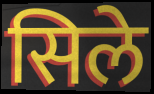
सिले